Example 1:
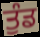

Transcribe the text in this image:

ਤੁੰਡ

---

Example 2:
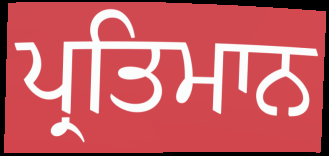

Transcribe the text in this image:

ਪ੍ਰਤਿਮਾਨ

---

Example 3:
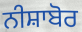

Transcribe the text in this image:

ਨੀਸ਼ਾਬੋਰ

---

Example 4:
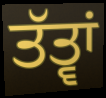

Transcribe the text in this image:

ਤੱਤ੍ਵਾਂ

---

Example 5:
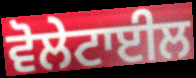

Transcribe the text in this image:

ਵੋਲੇਟਾਈਲ